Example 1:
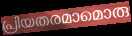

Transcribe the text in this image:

പ്രിയതരമാമൊരു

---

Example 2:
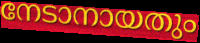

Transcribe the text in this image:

നേടാനായതും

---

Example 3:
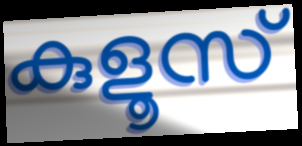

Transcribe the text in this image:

കുളൂസ്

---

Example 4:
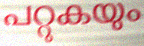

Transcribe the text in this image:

പറ്റുകയും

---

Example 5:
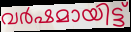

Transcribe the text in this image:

വർഷമായിട്ട്